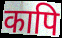
कापि